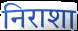
निराशा